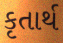
કૃતાર્થ